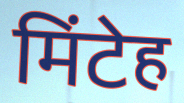
मिंटेह